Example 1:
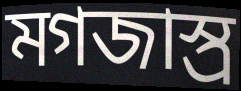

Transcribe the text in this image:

মগজাস্ত্র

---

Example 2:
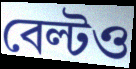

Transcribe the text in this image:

বেল্টও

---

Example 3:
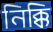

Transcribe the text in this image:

নিক্কি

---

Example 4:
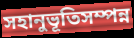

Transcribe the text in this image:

সহানুভূতিসম্পন্ন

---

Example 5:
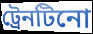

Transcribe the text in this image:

ট্রেনটিনো